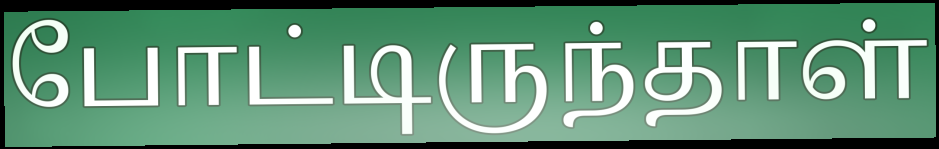
போட்டிருந்தாள்